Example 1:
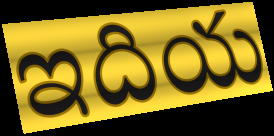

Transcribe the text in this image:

ఇదియ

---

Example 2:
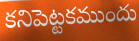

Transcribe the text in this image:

కనిపెట్టకముందు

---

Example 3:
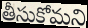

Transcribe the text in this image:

తీసుకోమని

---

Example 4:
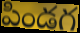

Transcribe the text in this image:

పిండగ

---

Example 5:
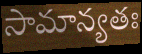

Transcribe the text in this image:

సామాన్యతః